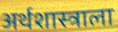
अर्थशास्त्राला